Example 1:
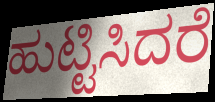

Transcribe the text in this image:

ಹುಟ್ಟಿಸಿದರೆ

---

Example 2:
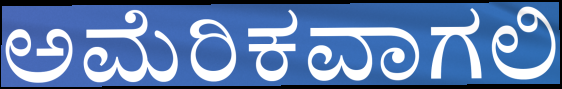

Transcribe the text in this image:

ಅಮೆರಿಕವಾಗಲಿ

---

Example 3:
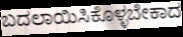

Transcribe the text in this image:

ಬದಲಾಯಿಸಿಕೊಳ್ಳಬೇಕಾದ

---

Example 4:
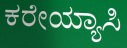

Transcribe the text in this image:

ಕರೇಯ್ಯಾಸಿ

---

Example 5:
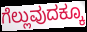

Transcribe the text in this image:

ಗೆಲ್ಲುವುದಕ್ಕೂ